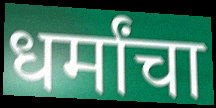
धर्मांचा